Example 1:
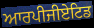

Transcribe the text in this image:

ਆਰਪੀਜੀਏਟਿਡ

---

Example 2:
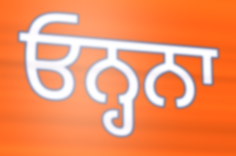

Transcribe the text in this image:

ਓਨ੍ਹਨਾ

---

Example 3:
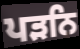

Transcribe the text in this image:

ਪੜਨਿ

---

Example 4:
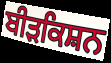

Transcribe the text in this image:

ਬੀੜਕਿਸ਼ਨ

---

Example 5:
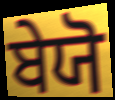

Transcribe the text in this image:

ਬੇਯੋ